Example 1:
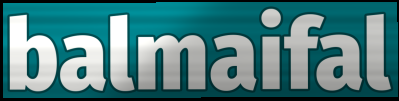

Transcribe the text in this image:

balmaifal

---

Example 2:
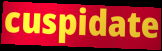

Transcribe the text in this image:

cuspidate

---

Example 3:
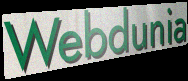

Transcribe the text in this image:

Webdunia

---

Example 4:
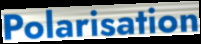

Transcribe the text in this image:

Polarisation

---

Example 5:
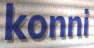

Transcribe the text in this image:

konni